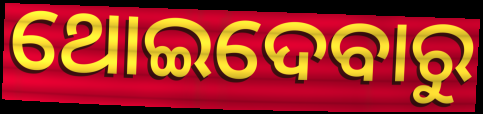
ଥୋଇଦେବାରୁ